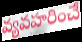
వ్యవహరించే